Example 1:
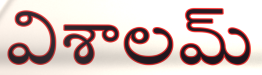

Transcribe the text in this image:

విశాలమ్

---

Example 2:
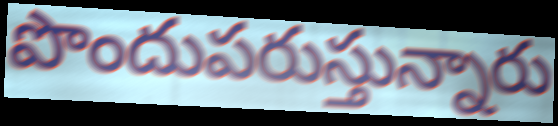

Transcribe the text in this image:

పొందుపరుస్తున్నారు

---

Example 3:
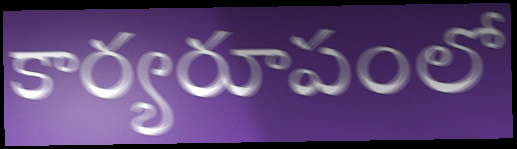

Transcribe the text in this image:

కార్యరూపంలో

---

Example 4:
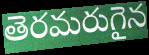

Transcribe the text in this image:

తెరమరుగైన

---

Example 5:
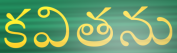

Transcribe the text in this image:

కవితను